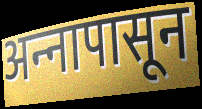
अन्नापासून